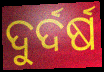
ଦୁର୍ଦର୍ଷ